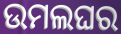
ଉମଲଘର